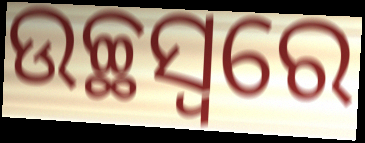
ଉଚ୍ଛସ୍ୱରେ